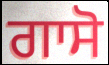
ਗਾਸੋ